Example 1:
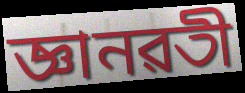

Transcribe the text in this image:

জ্ঞানৱতী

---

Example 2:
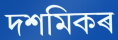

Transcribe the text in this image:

দশমিকৰ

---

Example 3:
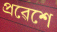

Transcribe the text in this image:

প্ৰৱেশে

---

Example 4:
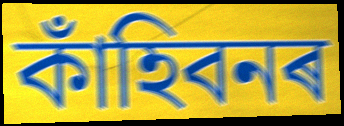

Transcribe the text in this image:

কাঁহিবনৰ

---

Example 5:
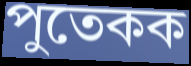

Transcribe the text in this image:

পুতেকক